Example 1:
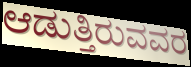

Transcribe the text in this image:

ಆಡುತ್ತಿರುವವರ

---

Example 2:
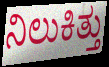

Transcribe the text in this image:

ನಿಲುಕಿತ್ತು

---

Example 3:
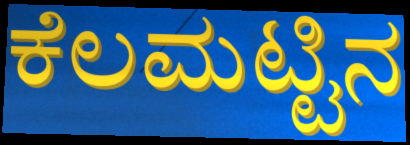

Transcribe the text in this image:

ಕೆಲಮಟ್ಟಿನ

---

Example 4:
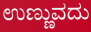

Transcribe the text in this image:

ಉಣ್ಣುವದು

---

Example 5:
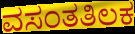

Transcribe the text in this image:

ವಸಂತತಿಲಕ